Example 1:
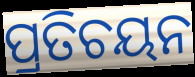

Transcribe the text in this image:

ପ୍ରତିଚୟନ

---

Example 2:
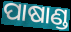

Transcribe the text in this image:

ପାଷାଣ୍ଡ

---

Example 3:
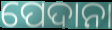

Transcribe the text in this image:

ପେଦାନା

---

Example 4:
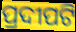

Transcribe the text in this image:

ପ୍ରଦୀପଟି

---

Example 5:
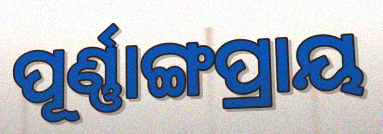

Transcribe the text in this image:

ପୂର୍ଣ୍ଣାଙ୍ଗପ୍ରାୟ